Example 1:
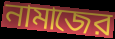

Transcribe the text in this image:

নামাজের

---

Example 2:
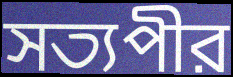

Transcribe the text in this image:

সত্যপীর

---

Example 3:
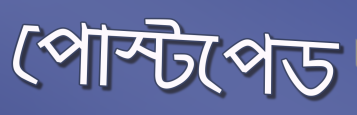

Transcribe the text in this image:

পোস্টপেড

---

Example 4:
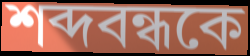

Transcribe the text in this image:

শব্দবন্ধকে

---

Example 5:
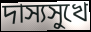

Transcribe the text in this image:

দাস্যসুখে